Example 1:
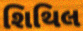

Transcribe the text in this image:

શિથિલ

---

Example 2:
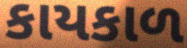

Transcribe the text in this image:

કાયકાળ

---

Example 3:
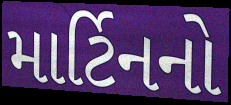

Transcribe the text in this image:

માર્ટિનનો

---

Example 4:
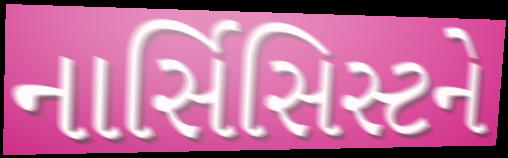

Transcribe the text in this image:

નાર્સિસિસ્ટને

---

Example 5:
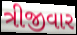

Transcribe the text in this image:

ત્રીજીવાર